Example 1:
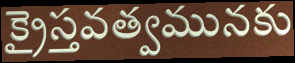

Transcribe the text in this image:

క్రైస్తవత్వమునకు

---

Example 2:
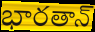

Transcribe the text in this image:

భారతాన్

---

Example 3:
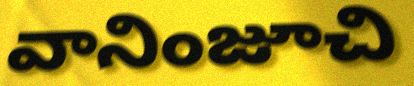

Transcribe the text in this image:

వానింజూచి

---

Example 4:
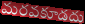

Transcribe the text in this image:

మరవకూడదు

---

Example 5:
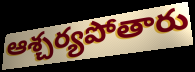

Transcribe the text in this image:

ఆశ్చర్యపోతారు